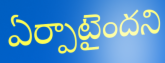
ఏర్పాటైందని